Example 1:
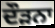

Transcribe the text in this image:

ਦੌੜਨਾ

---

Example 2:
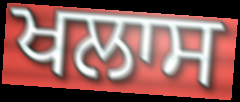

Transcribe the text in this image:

ਖਲਾਸ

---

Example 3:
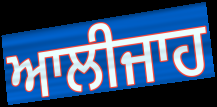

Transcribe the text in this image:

ਆਲੀਜਾਹ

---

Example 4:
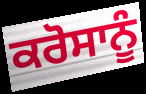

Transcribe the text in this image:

ਕਰੋਸਾਨੂੰ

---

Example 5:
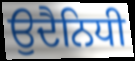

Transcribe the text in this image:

ਉਦੈਨਿਧੀ